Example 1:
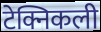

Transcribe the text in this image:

टेक्निकली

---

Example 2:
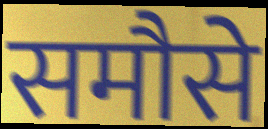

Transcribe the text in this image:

समौसे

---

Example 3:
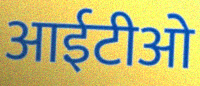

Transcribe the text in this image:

आईटीओ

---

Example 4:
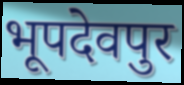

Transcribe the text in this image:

भूपदेवपुर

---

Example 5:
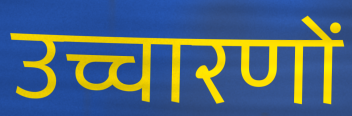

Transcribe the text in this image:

उच्चारणों